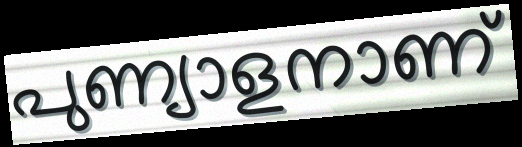
പുണ്യാളനാണ്